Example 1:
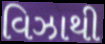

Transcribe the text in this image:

વિઝાથી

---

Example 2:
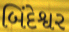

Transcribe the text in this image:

બિંદેશ્વર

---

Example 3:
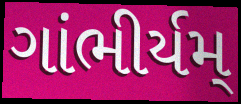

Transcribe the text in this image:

ગાંભીર્યમ્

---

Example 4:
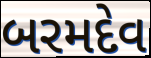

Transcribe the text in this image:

બરમદેવ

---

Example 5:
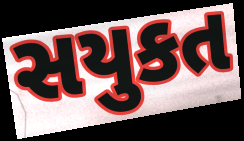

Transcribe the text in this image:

સયુકત